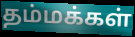
தம்மக்கள்